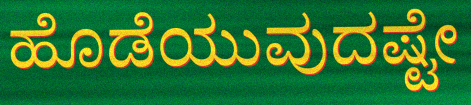
ಹೊಡೆಯುವುದಷ್ಟೇ